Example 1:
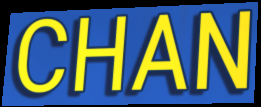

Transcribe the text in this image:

CHAN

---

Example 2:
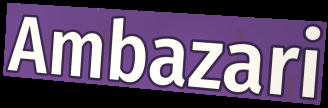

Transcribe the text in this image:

Ambazari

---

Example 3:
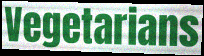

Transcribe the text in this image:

Vegetarians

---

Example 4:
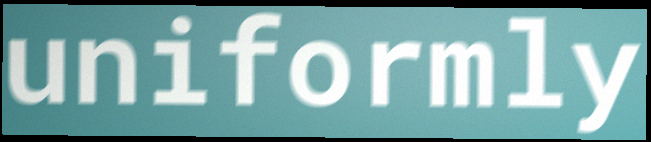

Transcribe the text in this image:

uniformly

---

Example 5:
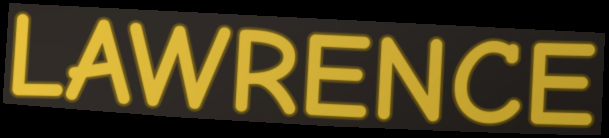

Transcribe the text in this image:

LAWRENCE